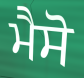
ਮੈਸੋ